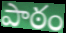
పాఠం